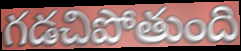
గడచిపోతుంది